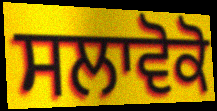
ਸਲਾਵੋਕੋ